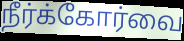
நீர்க்கோர்வை